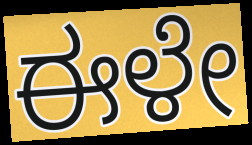
ಈಳೇ